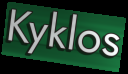
Kyklos